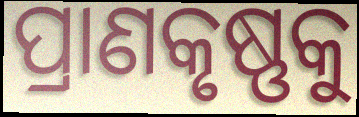
ପ୍ରାଣକୃଷ୍ଣକୁ